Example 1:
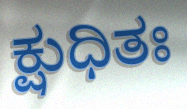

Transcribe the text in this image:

ಕ್ಷುಧಿತಃ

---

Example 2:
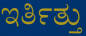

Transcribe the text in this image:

ಇರ್ತಿತ್ತು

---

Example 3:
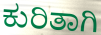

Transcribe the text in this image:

ಕುರಿತಾಗಿ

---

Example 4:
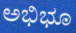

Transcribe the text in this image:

ಅಭಿಭೂ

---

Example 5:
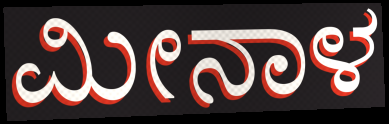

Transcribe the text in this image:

ಮೀನಾಳ